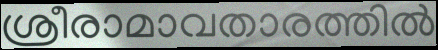
ശ്രീരാമാവതാരത്തിൽ